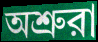
অশ্রুরা